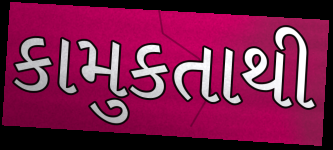
કામુકતાથી